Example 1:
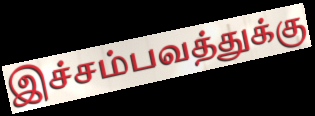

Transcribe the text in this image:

இச்சம்பவத்துக்கு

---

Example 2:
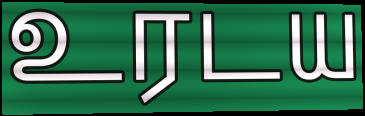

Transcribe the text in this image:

உரடய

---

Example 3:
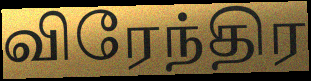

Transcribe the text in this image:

விரேந்திர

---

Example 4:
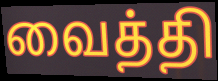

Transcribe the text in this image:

வைத்தி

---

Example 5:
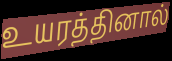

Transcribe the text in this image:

உயரத்தினால்